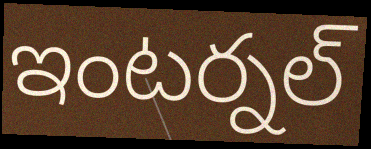
ఇంటర్నల్